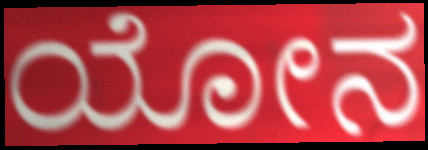
ಯೋನ